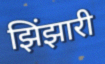
झिंझारी